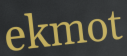
ekmot